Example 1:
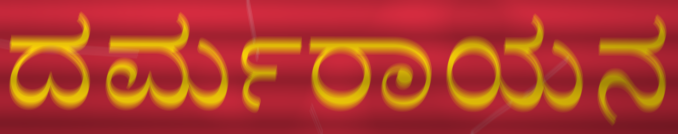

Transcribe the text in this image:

ದರ್ಮರಾಯನ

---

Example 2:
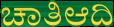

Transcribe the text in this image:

ಚಾತಿಆದಿ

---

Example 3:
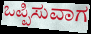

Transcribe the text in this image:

ಒಪ್ಪಿಸುವಾಗ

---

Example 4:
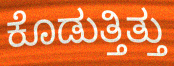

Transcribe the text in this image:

ಕೊಡುತ್ತಿತ್ತು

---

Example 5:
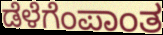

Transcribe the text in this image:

ಡೆಳೆಗೆಂಪಾಂತ